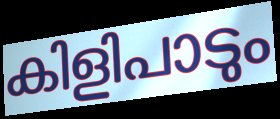
കിളിപാടും